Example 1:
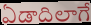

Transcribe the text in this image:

ఏడాదిలాగే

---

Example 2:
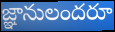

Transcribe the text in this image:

జ్ఞానులందరూ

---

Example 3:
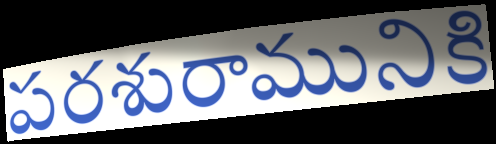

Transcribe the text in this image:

పరశురామునికి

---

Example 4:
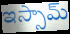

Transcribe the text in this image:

ఇస్సామ్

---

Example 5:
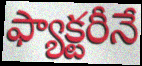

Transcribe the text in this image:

ఫ్యాక్టరీనే